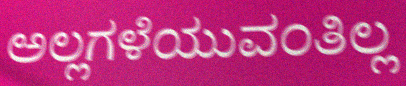
ಅಲ್ಲಗಳೆಯುವಂತಿಲ್ಲ